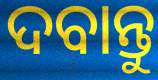
ଦବାନ୍ତୁ